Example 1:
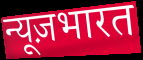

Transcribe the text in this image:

न्यूज़भारत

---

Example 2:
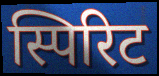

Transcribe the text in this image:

स्पिरिट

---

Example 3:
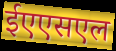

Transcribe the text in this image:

ईएएसएल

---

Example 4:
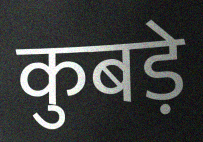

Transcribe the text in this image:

कुबड़े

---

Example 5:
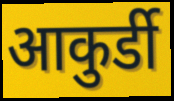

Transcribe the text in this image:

आकुर्डी